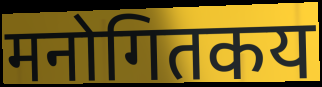
मनोगितकय